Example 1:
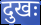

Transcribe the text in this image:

दुखः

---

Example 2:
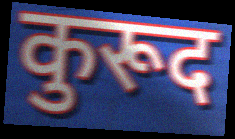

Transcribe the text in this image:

कुरूद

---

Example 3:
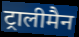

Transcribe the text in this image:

ट्रालीमैन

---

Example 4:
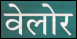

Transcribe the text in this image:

वेलोर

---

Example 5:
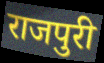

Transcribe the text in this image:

राजपुरी